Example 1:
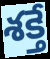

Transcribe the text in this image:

శక్తే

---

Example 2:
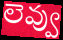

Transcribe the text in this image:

లెవ్వు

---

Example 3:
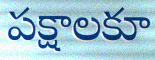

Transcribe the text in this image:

పక్షాలకూ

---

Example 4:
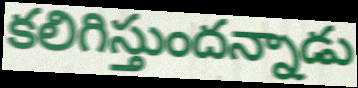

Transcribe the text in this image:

కలిగిస్తుందన్నాడు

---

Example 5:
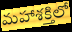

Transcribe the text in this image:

మహాశక్తిలో